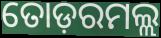
ତୋଡ଼ରମଲ୍ଲ